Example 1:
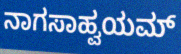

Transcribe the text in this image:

ನಾಗಸಾಹ್ವಯಮ್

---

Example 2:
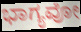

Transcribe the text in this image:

ಭಾಗ್ಯವೋ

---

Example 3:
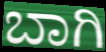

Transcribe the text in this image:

ಬಾಗಿ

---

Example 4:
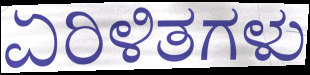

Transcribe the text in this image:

ಏರಿಳಿತಗಳು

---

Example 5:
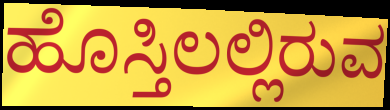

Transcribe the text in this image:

ಹೊಸ್ತಿಲಲ್ಲಿರುವ